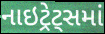
નાઇટ્રેટ્સમાં